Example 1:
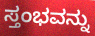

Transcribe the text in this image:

ಸ್ತಂಭವನ್ನು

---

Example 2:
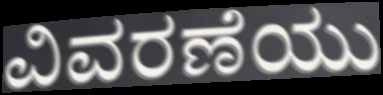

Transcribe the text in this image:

ವಿವರಣೆಯು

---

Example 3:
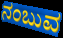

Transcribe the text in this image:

ನಂಬುವ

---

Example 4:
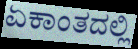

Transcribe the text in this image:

ಏಕಾಂತದಲ್ಲಿ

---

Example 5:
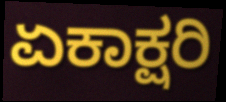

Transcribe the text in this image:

ಏಕಾಕ್ಷರಿ